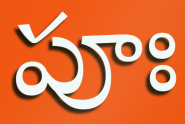
పూః